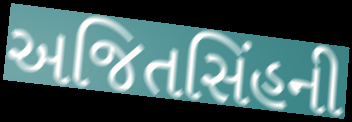
અજિતસિંહની